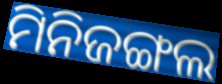
ମିନିଜଙ୍ଗଲ